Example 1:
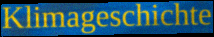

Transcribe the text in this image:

Klimageschichte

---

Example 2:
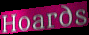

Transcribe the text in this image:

Hoards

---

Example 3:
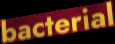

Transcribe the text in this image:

bacterial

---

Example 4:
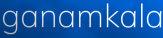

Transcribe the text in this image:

ganamkala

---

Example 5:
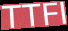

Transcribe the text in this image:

TTFI